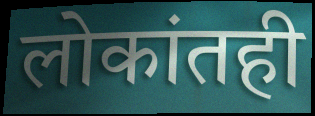
लोकांतही